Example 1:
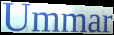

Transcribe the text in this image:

Ummar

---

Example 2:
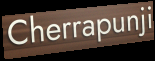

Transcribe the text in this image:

Cherrapunji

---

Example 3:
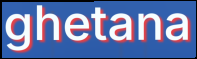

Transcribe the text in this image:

ghetana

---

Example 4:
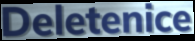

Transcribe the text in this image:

Deletenice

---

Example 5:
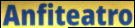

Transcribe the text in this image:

Anfiteatro